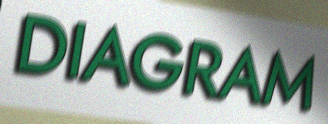
DIAGRAM